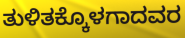
ತುಳಿತಕ್ಕೊಳಗಾದವರ